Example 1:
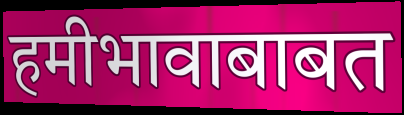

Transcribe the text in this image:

हमीभावाबाबत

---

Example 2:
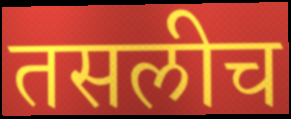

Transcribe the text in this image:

तसलीच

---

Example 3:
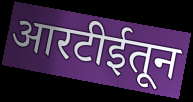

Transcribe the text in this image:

आरटीईतून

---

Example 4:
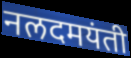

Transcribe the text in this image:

नलदमयंती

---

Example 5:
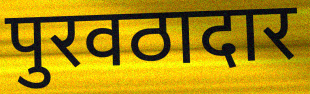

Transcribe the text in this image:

पुरवठादार